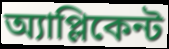
অ্যাপ্লিকেন্ট